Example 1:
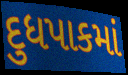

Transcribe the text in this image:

દુધપાકમાં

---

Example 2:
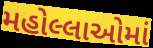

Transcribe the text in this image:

મહોલ્લાઓમાં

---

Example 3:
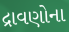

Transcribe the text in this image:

દ્રાવણોના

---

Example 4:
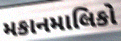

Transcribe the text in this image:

મકાનમાલિકો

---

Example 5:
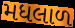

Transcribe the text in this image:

મધલાળ